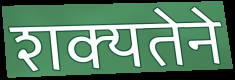
शक्यतेने